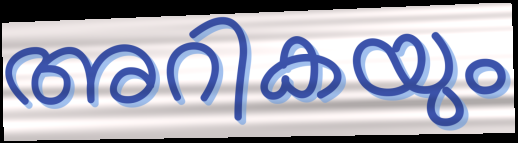
അറികയും